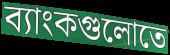
ব্যাংকগুলোতে